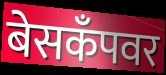
बेसकॅंपवर